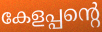
കേളപ്പന്റെ